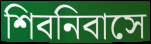
শিবনিবাসে